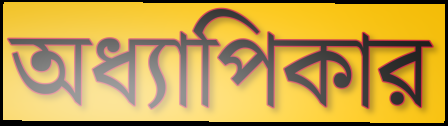
অধ্যাপিকার